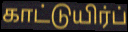
காட்டுயிர்ப்